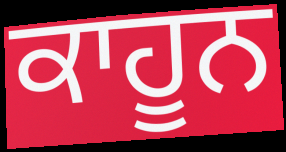
ਕਾਹੂਨ